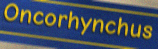
Oncorhynchus